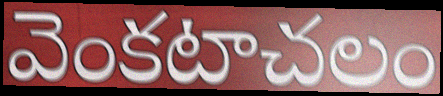
వెంకటాచలం